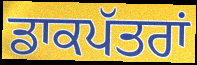
ਡਾਕਪੱਤਰਾਂ